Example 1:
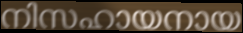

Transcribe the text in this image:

നിസഹായനായ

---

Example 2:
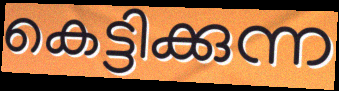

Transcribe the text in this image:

കെട്ടിക്കുന്ന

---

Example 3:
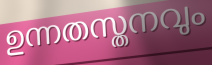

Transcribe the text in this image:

ഉന്നതസ്തനവും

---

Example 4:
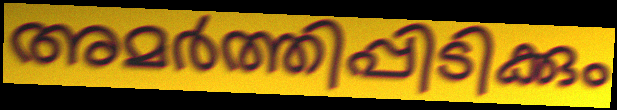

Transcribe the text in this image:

അമർത്തിപ്പിടിക്കും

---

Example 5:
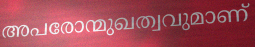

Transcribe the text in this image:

അപരോന്മുഖത്വവുമാണ്